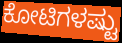
ಕೋಟಿಗಳಷ್ಟು